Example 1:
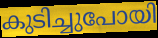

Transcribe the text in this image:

കുടിച്ചുപോയി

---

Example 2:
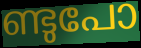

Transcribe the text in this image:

ണ്ടുപോ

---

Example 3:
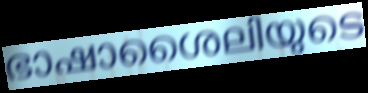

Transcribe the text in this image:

ഭാഷാശൈലിയുടെ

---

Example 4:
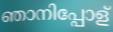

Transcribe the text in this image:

ഞാനിപ്പോള്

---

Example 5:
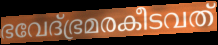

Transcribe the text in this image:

ഭവേദ്ഭ്രമരകീടവത്